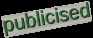
publicised